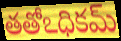
తతోఽధికమ్